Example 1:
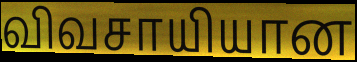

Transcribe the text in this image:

விவசாயியான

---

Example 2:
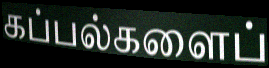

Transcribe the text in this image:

கப்பல்களைப்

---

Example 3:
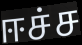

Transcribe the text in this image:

ஈச்ச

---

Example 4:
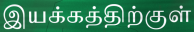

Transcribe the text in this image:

இயக்கத்திற்குள்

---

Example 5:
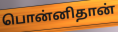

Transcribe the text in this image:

பொன்னிதான்